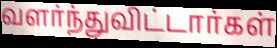
வளர்ந்துவிட்டார்கள்